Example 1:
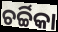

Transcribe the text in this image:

ଚର୍ଚ୍ଚିକା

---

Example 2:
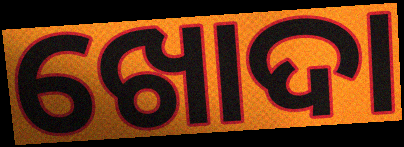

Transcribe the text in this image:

ଖୋଦା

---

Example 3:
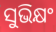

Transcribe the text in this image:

ସୁଭିକ୍ଷଂ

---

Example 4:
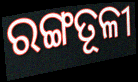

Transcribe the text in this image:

ରଙ୍ଗତୂଳୀ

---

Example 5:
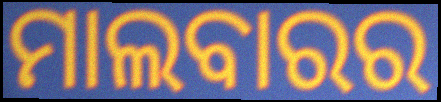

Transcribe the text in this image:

ମାଲବାରର